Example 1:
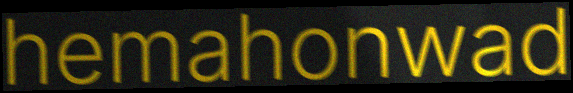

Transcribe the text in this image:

hemahonwad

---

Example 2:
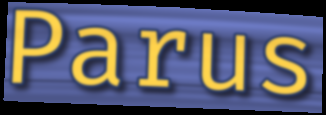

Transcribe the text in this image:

Parus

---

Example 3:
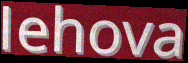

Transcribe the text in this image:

Iehova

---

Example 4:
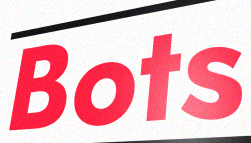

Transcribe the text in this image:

Bots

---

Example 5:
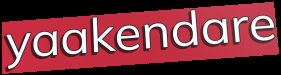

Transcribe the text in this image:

yaakendare